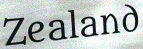
Zealand